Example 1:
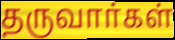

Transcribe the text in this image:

தருவார்கள்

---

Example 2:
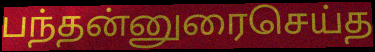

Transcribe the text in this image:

பந்தன்னுரைசெய்த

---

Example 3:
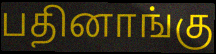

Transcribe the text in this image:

பதினாங்கு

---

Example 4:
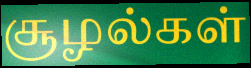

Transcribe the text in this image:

சூழல்கள்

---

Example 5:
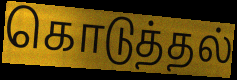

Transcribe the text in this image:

கொடுத்தல்